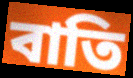
বাতি